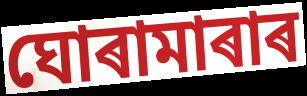
ঘোৰামাৰাৰ